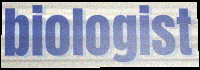
biologist